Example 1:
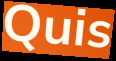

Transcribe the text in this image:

Quis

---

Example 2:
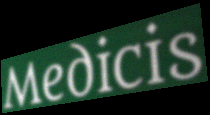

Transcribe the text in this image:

Medicis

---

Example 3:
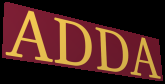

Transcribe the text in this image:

ADDA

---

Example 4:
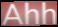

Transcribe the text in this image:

Ahh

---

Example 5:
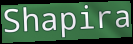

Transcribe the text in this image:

Shapira